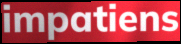
impatiens